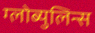
ग्लोब्युलिन्स